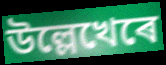
উল্লেখেৰে